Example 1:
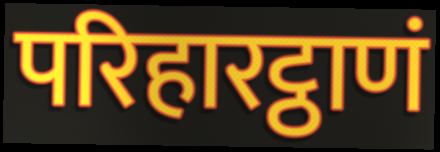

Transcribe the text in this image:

परिहारट्ठाणं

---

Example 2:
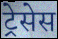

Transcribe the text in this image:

ट्रेसेस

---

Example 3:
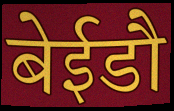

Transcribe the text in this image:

बेईडौ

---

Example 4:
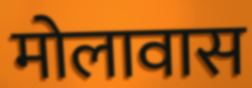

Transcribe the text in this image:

मोलावास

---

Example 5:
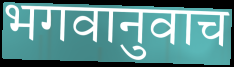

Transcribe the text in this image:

भगवानुवाच